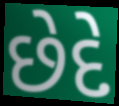
છેદે